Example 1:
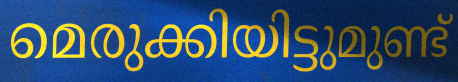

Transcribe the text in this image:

മെരുക്കിയിട്ടുമുണ്ട്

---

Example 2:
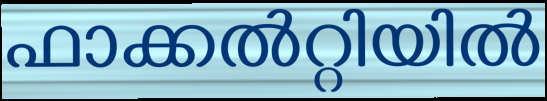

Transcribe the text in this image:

ഫാക്കൽറ്റിയിൽ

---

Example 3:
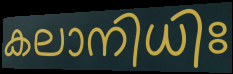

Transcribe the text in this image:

കലാനിധിഃ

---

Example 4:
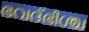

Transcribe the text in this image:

ഭവദ്ഭിശ്ച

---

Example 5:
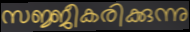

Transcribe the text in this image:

സജ്ജീകരിക്കുന്നു